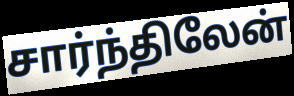
சார்ந்திலேன்